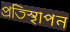
প্রতিস্থাপন